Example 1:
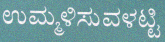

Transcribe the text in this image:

ಉಮ್ಮಳಿಸುವಳಟ್ಟಿ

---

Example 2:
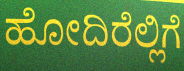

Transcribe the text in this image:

ಹೋದಿರೆಲ್ಲಿಗೆ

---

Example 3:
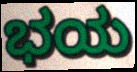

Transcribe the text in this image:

ಭಯ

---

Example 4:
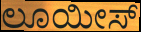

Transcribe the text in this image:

ಲೂಯೀಸ್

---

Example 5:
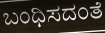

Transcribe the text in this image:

ಬಂಧಿಸದಂತೆ